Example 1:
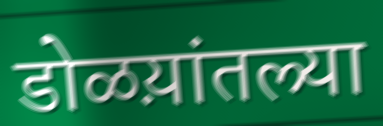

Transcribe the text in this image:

डोळय़ांतल्या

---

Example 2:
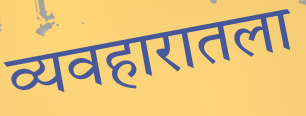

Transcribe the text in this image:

व्यवहारातला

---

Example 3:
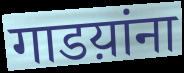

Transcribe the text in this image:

गाडय़ांना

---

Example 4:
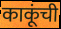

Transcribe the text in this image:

काकूंची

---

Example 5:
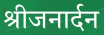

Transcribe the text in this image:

श्रीजनार्दन